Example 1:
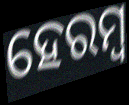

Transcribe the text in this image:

ହେରମ୍ୱ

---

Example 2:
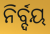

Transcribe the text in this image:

ନିର୍ବ୍ଦୟ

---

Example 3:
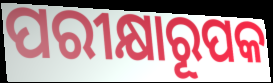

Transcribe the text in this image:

ପରୀକ୍ଷାରୂପକ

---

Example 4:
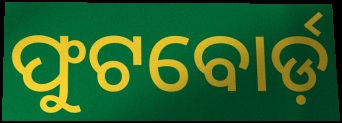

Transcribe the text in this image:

ଫୁଟବୋର୍ଡ଼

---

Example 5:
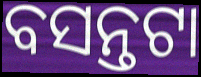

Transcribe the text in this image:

ବସନ୍ତଟା